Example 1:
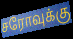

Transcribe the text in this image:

சரோவுக்கு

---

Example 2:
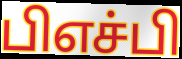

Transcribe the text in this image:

பிஎச்பி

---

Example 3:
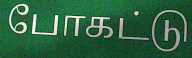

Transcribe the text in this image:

போகட்டு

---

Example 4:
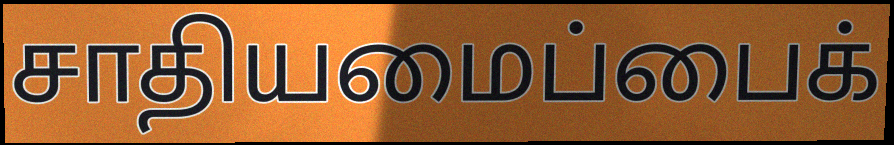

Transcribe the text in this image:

சாதியமைப்பைக்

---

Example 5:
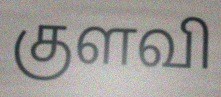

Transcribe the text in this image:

குளவி